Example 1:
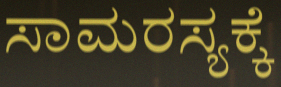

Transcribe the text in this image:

ಸಾಮರಸ್ಯಕ್ಕೆ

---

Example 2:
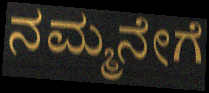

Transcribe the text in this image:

ನಮ್ಮನೇಗೆ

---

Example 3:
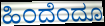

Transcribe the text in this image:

ಹಿಂದೆಂದೂ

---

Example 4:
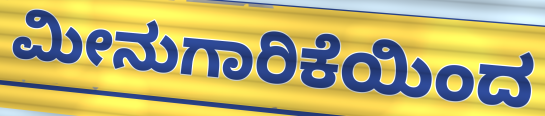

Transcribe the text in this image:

ಮೀನುಗಾರಿಕೆಯಿಂದ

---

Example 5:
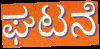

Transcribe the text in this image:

ಘಟನೆ